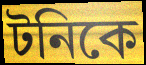
টনিকে